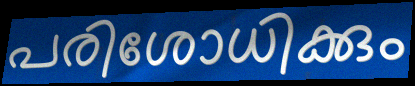
പരിശോധിക്കും